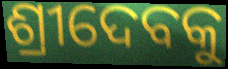
ଶ୍ରୀଦେବକୁ